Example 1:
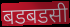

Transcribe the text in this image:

बडबडसी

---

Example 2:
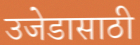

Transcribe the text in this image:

उजेडासाठी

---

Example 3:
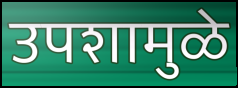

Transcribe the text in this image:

उपशामुळे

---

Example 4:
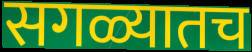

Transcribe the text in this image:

सगळ्यातच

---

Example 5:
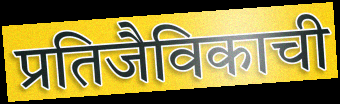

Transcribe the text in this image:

प्रतिजैविकाची